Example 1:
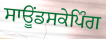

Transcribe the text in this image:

ਸਾਊਂਡਸਕੇਪਿੰਗ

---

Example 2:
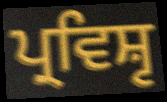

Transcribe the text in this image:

ਪ੍ਰਵਿਸ਼੍ਟ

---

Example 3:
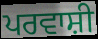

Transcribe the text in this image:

ਪਰਵਾਸ਼ੀ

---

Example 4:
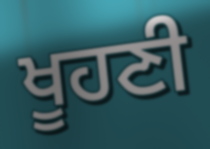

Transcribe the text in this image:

ਖੂਹਣੀ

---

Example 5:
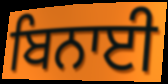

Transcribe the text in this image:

ਬਿਨਾਈ